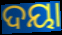
ଦୟା